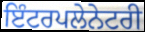
ਇੰਟਰਪਲੇਨੇਟਰੀ